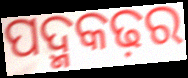
ପଦ୍ମକଢ଼ର